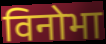
विनोभा